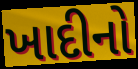
ખાદીનો